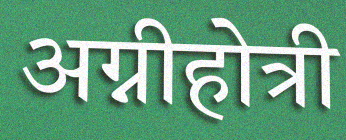
अग्नीहोत्री